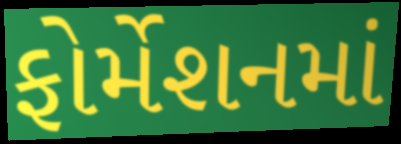
ફોર્મેશનમાં